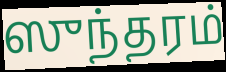
ஸுந்தரம்